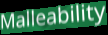
Malleability